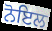
ਨੋਇਲ